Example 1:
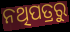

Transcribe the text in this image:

ନଥିପତ୍ରରୁ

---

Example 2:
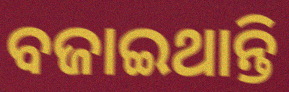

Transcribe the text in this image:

ବଜାଇଥାନ୍ତି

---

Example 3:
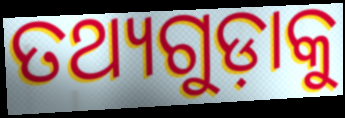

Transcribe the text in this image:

ତଥ୍ୟଗୁଡ଼ାକୁ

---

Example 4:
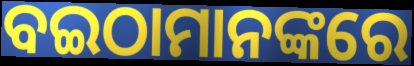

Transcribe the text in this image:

ବଇଠାମାନଙ୍କରେ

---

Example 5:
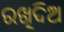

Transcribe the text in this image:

ରଖିଦିଅ